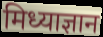
मिध्याज्ञान